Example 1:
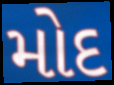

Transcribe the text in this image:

મોદ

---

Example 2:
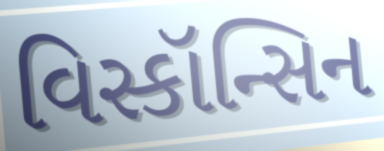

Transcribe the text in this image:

વિસ્કૉન્સિન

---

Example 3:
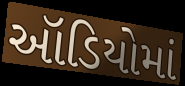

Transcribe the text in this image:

ઑડિયોમાં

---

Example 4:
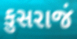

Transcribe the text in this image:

કુસરાજં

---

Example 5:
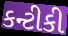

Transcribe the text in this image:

કન્ટીકી